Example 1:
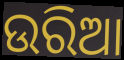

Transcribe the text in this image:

ଉରିଆ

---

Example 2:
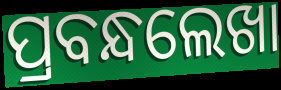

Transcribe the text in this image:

ପ୍ରବନ୍ଧଲେଖା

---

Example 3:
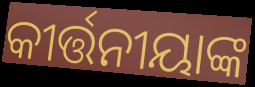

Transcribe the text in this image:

କୀର୍ତ୍ତନୀୟାଙ୍କ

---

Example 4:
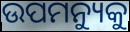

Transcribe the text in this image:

ଉପମନ୍ୟୁକୁ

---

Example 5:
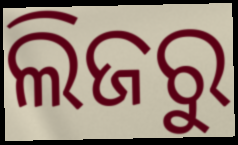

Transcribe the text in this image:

ଲିଜରୁ